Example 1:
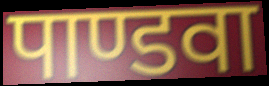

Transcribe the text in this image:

पाण्डवा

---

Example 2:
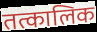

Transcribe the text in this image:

तत्कालिक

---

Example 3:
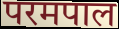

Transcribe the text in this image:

परमपाल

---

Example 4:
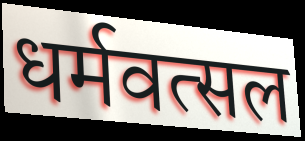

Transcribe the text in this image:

धर्मवत्सल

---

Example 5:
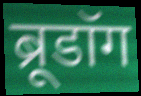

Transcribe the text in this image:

ब्रूडॉग